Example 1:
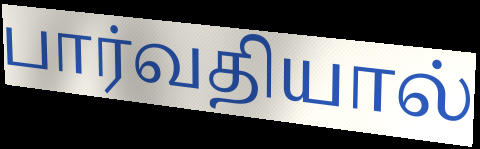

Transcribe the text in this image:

பார்வதியால்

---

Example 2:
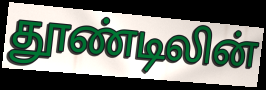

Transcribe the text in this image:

தூண்டிலின்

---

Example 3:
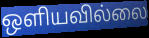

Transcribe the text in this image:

ஒளியவில்லை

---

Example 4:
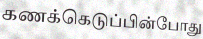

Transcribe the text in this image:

கணக்கெடுப்பின்போது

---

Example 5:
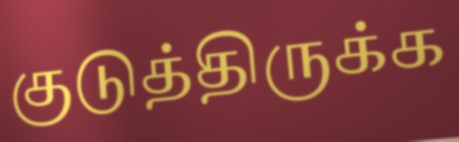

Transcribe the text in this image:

குடுத்திருக்க